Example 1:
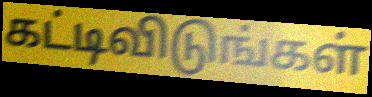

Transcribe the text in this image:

கட்டிவிடுங்கள்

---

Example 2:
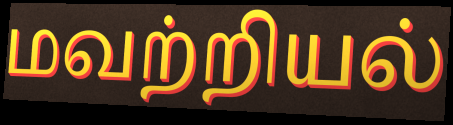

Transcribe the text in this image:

மவற்றியல்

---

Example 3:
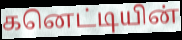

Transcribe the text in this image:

கனெட்டியின்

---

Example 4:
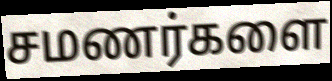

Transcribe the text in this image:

சமணர்களை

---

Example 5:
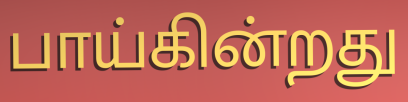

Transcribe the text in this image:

பாய்கின்றது